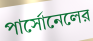
পার্সোনেলের